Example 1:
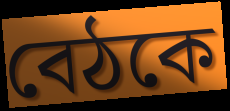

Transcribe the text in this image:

বেঠকে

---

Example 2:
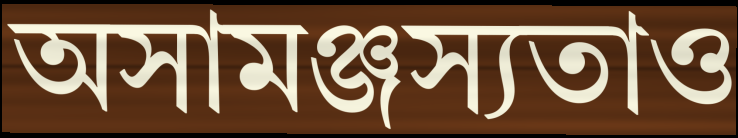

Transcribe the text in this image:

অসামঞ্জস্যতাও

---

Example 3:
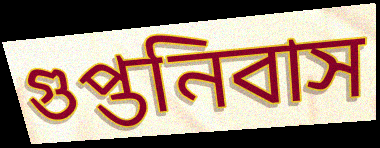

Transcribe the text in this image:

গুপ্তনিবাস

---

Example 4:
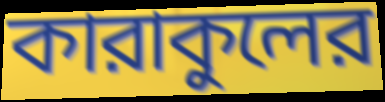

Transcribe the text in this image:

কারাকুলের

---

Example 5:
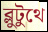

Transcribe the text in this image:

ব্লুটুথে